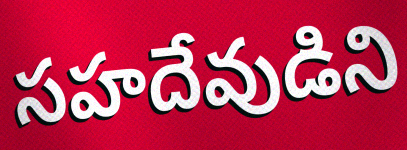
సహదేవుడిని